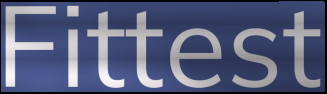
Fittest